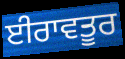
ਈਰਾਵਤੂਰ